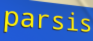
parsis